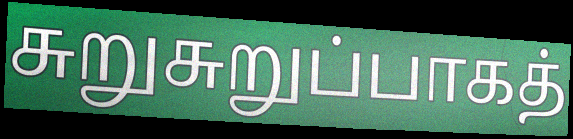
சுறுசுறுப்பாகத்